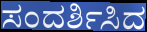
ಸಂದರ್ಶಿಸಿದ